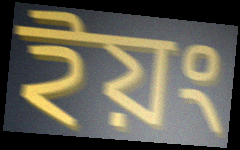
ইয়ং